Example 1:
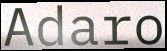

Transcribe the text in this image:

Adaro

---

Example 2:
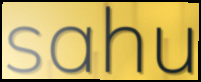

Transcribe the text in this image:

sahu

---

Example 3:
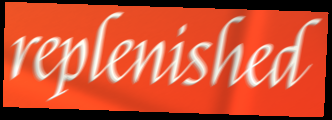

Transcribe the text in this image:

replenished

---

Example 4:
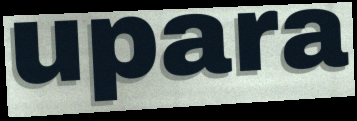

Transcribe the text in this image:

upara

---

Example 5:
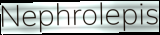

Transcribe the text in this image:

Nephrolepis